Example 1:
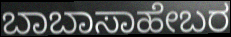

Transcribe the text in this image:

ಬಾಬಾಸಾಹೇಬರ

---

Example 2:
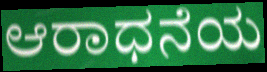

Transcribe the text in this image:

ಆರಾಧನೆಯ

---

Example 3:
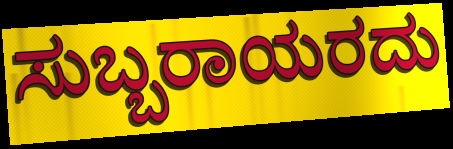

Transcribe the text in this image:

ಸುಬ್ಬರಾಯರದು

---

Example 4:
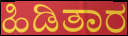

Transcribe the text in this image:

ಹಿಡಿತಾರ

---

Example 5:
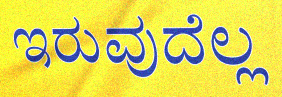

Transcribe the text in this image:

ಇರುವುದೆಲ್ಲ